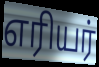
எரியர்